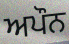
ਅਪੌਨ